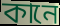
কানে